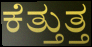
ಕೆತ್ತುತ್ತ